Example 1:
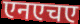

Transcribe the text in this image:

एनएचए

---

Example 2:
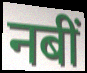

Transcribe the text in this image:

नबीं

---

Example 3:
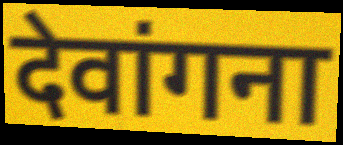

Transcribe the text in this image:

देवांगना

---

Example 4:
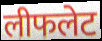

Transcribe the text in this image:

लीफलेट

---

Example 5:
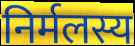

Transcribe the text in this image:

निर्मलस्य